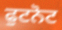
ਫੁਟਨੋਟ